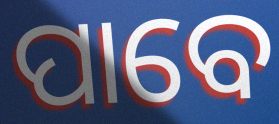
ପାବେ